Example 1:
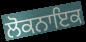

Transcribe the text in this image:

ਲੋਕਨਾਇਕ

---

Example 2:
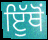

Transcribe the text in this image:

ਇੁੱਥੋਂ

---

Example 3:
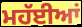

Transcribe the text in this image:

ਮਹੱਈਆਂ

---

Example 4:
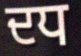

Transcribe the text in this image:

ਦਧ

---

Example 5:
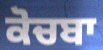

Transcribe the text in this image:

ਕੋਚਬਾ